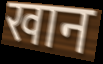
खान